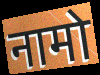
नामो